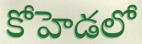
కోహెడలో